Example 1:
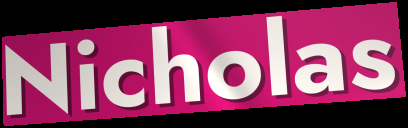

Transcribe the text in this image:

Nicholas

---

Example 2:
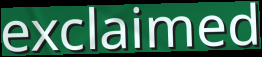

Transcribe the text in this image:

exclaimed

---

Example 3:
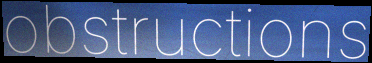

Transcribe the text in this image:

obstructions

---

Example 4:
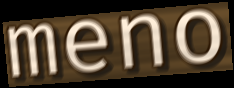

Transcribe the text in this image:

meno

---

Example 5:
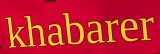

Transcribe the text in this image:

khabarer